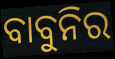
ବାବୁନିର